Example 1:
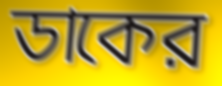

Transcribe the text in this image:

ডাকের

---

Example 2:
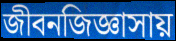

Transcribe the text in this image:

জীবনজিজ্ঞাসায়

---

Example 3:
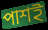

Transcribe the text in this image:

পাশই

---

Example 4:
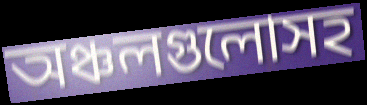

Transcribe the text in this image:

অঞ্চলগুলোসহ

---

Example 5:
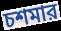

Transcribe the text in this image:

চশমার